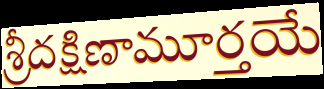
శ్రీదక్షిణామూర్తయే